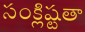
సంక్లిష్టతా